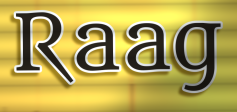
Raag